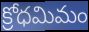
క్రోధమిమం